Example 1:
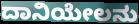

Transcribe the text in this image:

ದಾನಿಯೇಲನು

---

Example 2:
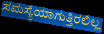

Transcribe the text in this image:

ಸಮಸ್ಯೆಯಾಗುತ್ತಿರಲಿಲ್ಲ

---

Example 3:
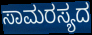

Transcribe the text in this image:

ಸಾಮರಸ್ಯದ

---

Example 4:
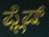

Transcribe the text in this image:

ಫ್ಲೆಷ್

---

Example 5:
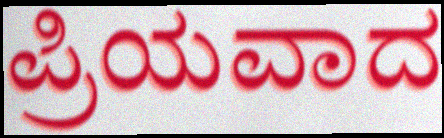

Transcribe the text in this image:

ಪ್ರಿಯವಾದ